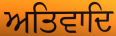
ਅਤਿਵਾਦਿ